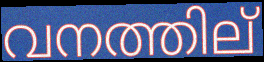
വനത്തില്